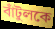
বাঁটুলকে